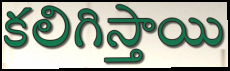
కలిగిస్తాయి